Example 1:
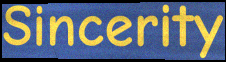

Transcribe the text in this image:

Sincerity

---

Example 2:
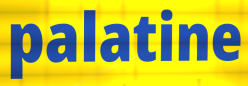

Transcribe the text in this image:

palatine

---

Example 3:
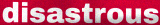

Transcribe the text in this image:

disastrous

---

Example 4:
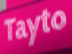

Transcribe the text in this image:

Tayto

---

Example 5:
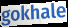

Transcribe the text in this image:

gokhale